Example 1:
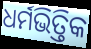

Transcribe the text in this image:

ଧର୍ମଭିତ୍ତିକ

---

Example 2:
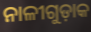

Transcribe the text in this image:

ନାଳୀଗୁଡ଼ାକ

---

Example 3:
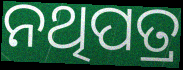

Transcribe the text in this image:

ନଥିପତ୍ର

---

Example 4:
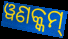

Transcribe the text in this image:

ୱଣକ୍କମ୍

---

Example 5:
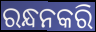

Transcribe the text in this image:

ରନ୍ଧନକରି